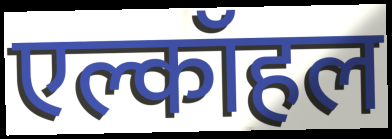
एल्कॉहल